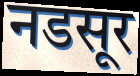
नडसूर